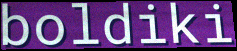
boldiki